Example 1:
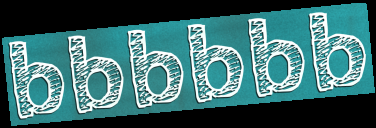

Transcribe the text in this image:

bbbbbb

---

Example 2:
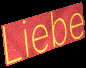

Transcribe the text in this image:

Liebe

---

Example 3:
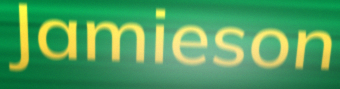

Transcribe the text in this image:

Jamieson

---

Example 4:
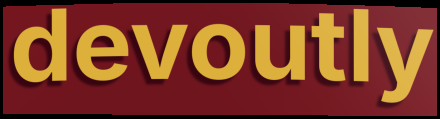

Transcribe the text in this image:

devoutly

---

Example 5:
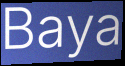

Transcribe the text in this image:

Baya